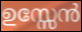
ഉസ്സേൻ